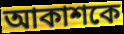
আকাশকে